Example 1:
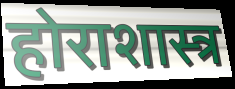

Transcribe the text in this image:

होराशास्त्र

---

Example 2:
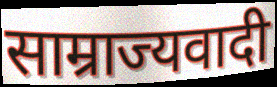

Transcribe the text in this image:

साम्राज्यवादी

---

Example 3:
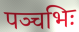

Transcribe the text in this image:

पञ्चभिः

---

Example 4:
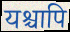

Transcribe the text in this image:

यश्चापि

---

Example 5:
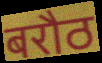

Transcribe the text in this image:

बरौठ